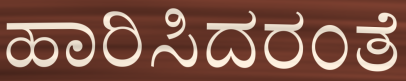
ಹಾರಿಸಿದರಂತೆ